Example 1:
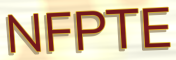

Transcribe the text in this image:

NFPTE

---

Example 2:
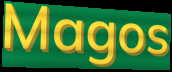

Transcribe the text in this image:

Magos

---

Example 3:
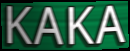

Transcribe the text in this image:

KAKA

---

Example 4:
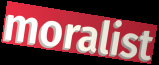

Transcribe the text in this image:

moralist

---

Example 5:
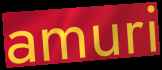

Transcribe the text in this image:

amuri